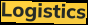
Logistics